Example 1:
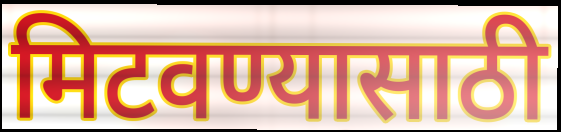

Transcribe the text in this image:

मिटवण्यासाठी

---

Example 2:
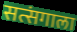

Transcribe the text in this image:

सत्संगाला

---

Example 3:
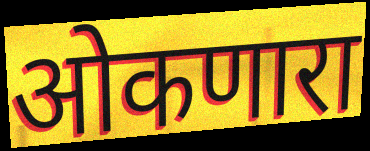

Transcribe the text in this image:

ओकणारा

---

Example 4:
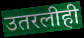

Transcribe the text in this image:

उतरलीही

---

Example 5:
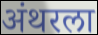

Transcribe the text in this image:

अंथरला